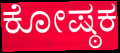
ಕೋಷ್ಠಕ